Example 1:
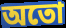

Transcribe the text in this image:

অতো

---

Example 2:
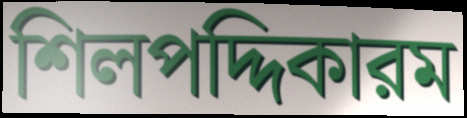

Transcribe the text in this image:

শিলপদ্দিকারম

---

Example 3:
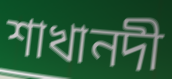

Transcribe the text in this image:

শাখানদী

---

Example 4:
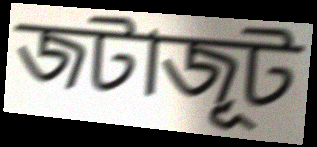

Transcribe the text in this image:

জটাজূট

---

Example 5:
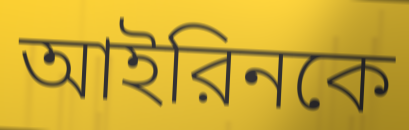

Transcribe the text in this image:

আইরিনকে